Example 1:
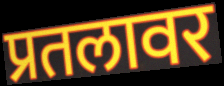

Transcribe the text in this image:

प्रतलावर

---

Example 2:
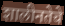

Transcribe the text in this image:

शालीनतेचे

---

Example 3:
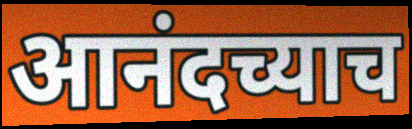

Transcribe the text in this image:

आनंदच्याच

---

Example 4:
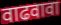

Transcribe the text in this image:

वाढवावा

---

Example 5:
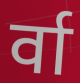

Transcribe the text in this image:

र्वा